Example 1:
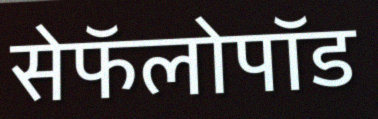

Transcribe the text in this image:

सेफॅलोपॉड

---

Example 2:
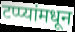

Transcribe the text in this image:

टप्प्यांमधून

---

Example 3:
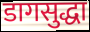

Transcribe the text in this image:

डागसुद्धा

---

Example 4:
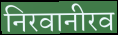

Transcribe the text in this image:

निरवानीरव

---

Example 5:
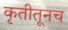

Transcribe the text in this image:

कृतीतूनच